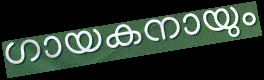
ഗായകനായും